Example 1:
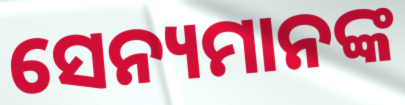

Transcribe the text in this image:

ସେନ୍ୟମାନଙ୍କ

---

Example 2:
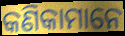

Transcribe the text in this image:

କଣିକାମାନେ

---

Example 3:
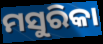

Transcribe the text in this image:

ମସୁରିକା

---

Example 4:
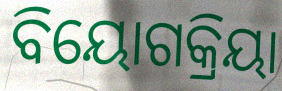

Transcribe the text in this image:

ବିୟୋଗକ୍ରିୟା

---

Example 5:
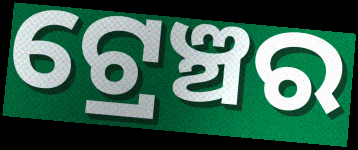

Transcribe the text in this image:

ଟ୍ରେଞ୍ଚର